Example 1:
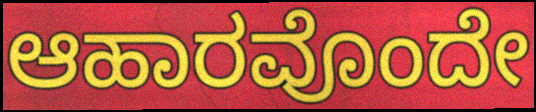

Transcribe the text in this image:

ಆಹಾರವೊಂದೇ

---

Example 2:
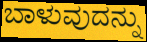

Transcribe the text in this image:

ಬಾಳುವುದನ್ನು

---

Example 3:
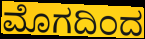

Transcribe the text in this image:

ಮೊಗದಿಂದ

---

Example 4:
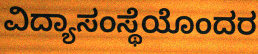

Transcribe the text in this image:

ವಿದ್ಯಾಸಂಸ್ಥೆಯೊಂದರ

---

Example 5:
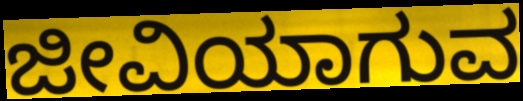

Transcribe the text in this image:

ಜೀವಿಯಾಗುವ